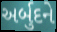
અર્બુદને